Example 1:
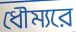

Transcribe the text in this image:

ধৌম্যরে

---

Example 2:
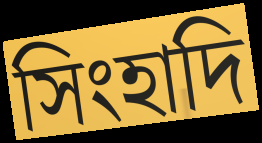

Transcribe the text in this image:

সিংহাদি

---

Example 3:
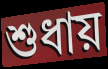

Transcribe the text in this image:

শুধায়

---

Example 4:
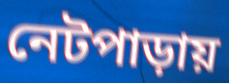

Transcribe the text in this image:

নেটপাড়ায়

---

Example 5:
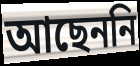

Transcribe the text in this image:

আছেননি